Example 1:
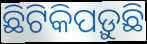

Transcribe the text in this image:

ଛିଟିକିପଡ଼ୁଛି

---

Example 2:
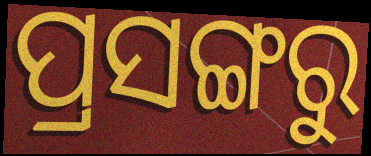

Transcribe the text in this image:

ପ୍ରସଙ୍ଗରୁ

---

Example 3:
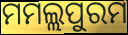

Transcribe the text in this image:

ମମଲ୍ଲପୁରମ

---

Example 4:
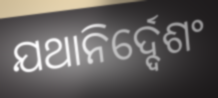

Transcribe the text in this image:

ଯଥାନିର୍ଦ୍ଦେଶଂ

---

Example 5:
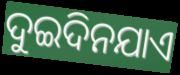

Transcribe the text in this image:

ଦୁଇଦିନଯାଏ